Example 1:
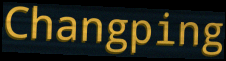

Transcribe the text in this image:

Changping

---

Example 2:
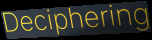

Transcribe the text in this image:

Deciphering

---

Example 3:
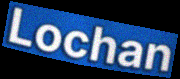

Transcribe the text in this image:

Lochan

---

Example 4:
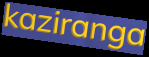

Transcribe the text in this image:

kaziranga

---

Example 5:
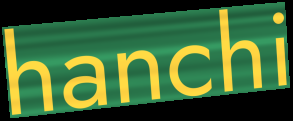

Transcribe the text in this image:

hanchi